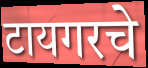
टायगरचे